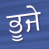
ਭੂਜੇ